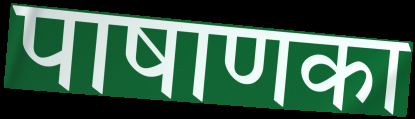
पाषाणका